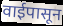
वाईपासून